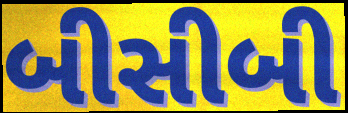
બીસીબી